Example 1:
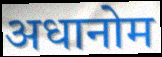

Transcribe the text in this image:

अधानोम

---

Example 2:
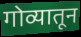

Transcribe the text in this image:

गोव्यातून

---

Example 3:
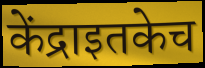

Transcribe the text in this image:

केंद्राइतकेच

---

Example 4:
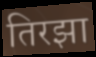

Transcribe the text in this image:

तिरझा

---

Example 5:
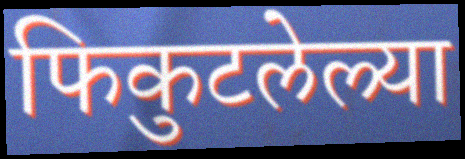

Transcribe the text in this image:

फिकुटलेल्या